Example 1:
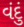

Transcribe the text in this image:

વંદું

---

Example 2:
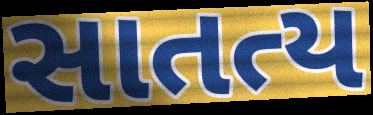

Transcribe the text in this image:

સાતત્ય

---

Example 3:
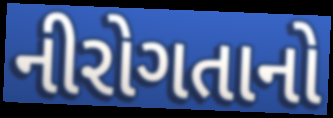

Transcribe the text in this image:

નીરોગતાનો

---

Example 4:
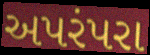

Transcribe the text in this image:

અપરંપરા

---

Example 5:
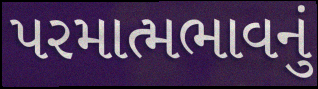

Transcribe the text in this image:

પરમાત્મભાવનું